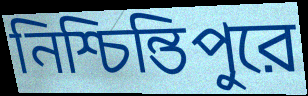
নিশ্চিন্তিপুরে